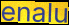
enalu